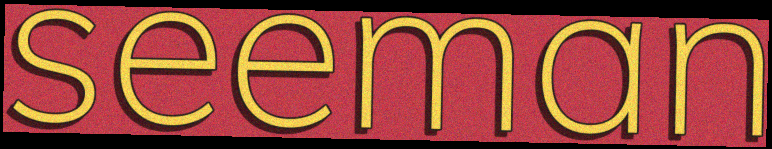
seeman